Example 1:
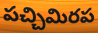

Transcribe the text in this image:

పచ్చిమిరప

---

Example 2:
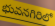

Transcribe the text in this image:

భువనగిరిలో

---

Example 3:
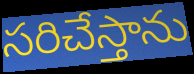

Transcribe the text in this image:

సరిచేస్తాను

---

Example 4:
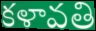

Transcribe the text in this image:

కళావతి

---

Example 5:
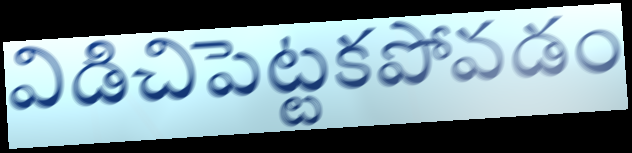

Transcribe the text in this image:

విడిచిపెట్టకపోవడం